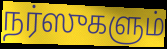
நர்ஸுகளும்